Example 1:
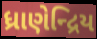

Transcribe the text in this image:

ધ્રાણેન્દ્રિય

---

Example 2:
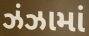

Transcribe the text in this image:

ઝંઝામાં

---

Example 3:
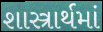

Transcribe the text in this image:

શાસ્ત્રાર્થમાં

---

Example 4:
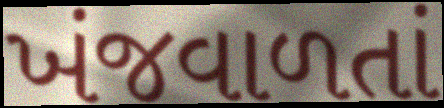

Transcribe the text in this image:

ખંજવાળતાં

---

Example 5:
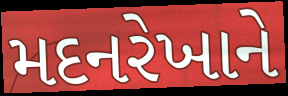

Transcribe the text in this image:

મદનરેખાને